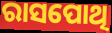
ରାସପୋଥି